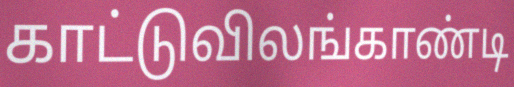
காட்டுவிலங்காண்டி